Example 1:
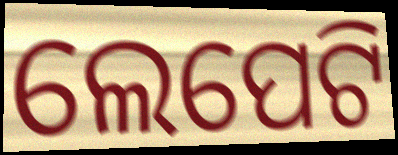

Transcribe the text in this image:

ଲେପେଟି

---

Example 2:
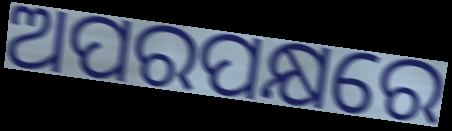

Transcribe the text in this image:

ଅପରପକ୍ଷରେ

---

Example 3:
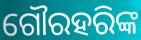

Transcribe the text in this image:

ଗୌରହରିଙ୍କ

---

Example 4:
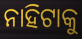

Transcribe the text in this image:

ନାହିଟାକୁ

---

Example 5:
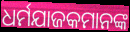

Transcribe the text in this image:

ଧର୍ମଯାଜକମାନଙ୍କ